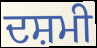
ਦਸ਼ਮੀ